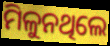
ମିଳୁନଥିଲେ